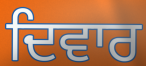
ਦਿਵਾਰ